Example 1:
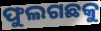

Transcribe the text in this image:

ଫୁଲଗଛକୁ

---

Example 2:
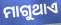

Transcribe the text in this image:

ମାଗୁଥାଏ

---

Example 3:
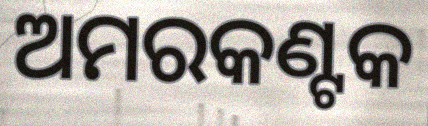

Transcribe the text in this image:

ଅମରକଣ୍ଟକ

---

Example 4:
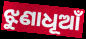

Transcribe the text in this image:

ଝୁଣାଧୂଆଁ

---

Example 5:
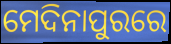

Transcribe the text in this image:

ମେଦିନାପୁରରେ